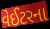
વેઈટરના